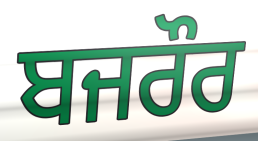
ਬਜਰੌਰ